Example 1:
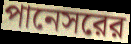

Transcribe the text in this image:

পানেসরের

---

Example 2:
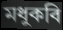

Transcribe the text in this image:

মধুকবি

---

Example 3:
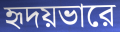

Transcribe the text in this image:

হৃদয়ভারে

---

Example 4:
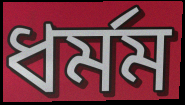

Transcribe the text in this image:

ধর্মম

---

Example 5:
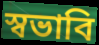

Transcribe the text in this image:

স্বভাবি